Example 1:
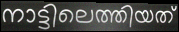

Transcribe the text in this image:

നാട്ടിലെത്തിയത്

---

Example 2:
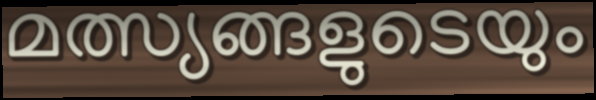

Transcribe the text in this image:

മത്സ്യങ്ങളുടെയും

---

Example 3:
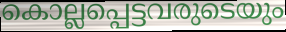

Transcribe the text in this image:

കൊല്ലപ്പെട്ടവരുടെയും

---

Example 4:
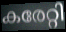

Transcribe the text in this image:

കരേറ്റി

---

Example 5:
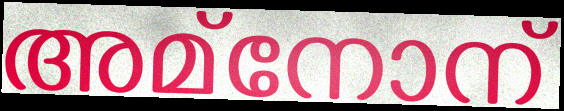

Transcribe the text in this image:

അമ്നോന്